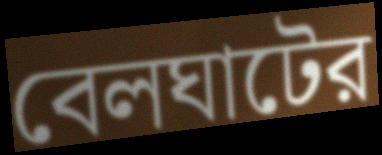
বেলঘাটের